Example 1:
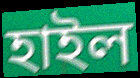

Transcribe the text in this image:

হাইল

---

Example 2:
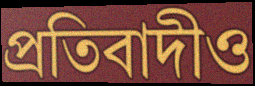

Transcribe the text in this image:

প্রতিবাদীও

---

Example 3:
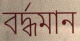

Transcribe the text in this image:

বর্দ্ধমান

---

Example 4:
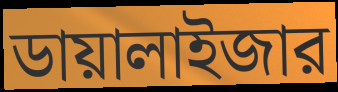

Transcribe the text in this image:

ডায়ালাইজার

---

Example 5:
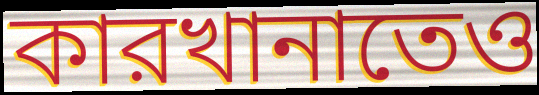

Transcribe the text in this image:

কারখানাতেও